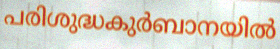
പരിശുദ്ധകുർബാനയിൽ